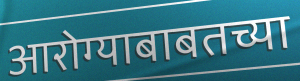
आरोग्याबाबतच्या